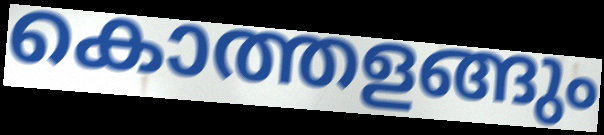
കൊത്തളങ്ങും